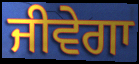
ਜੀਵੇਗਾ